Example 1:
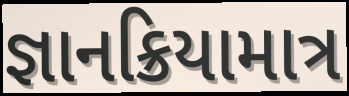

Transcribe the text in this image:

જ્ઞાનક્રિયામાત્ર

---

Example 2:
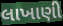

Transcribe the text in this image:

લાખાણી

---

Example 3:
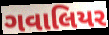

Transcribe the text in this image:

ગવાલિયર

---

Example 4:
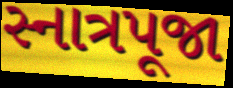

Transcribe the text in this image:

સ્નાત્રપૂજા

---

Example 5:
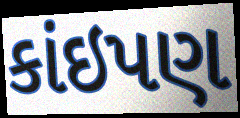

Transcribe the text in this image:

કાંઇપણ